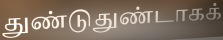
துண்டுதுண்டாகக்